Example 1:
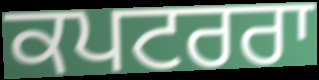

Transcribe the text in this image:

ਕਪਟਰਰਾ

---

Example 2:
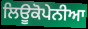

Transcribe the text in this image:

ਲਿਊਕੋਪੇਨੀਆ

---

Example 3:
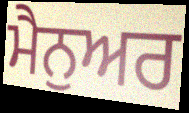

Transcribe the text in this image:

ਮੈਨੁਅਰ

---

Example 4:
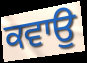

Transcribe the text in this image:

ਕਵਾਉ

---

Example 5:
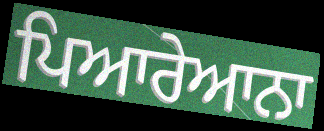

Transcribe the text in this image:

ਪਿਆਰੇਆਨਾ